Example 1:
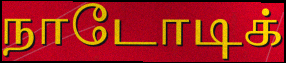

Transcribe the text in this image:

நாடோடிக்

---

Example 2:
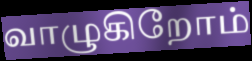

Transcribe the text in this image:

வாழுகிறோம்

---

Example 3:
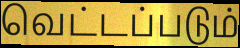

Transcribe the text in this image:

வெட்டப்படும்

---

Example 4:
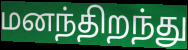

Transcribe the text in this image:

மனந்திறந்து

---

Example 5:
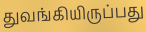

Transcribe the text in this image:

துவங்கியிருப்பது